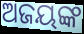
ଅଜୟଙ୍କ